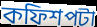
কফিশপটা